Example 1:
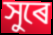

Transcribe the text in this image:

সুৰে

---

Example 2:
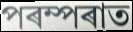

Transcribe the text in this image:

পৰম্পৰাত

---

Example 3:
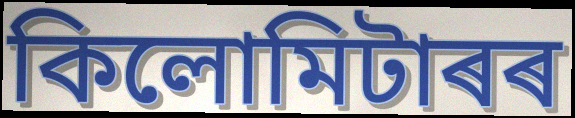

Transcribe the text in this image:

কিলোমিটাৰৰ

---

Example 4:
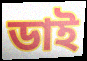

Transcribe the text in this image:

ডাই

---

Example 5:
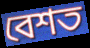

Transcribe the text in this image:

বেশত